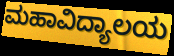
ಮಹಾವಿದ್ಯಾಲಯ